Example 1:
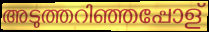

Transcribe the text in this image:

അടുത്തറിഞ്ഞപ്പോള്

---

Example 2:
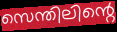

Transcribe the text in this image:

സെന്തിലിന്റെ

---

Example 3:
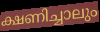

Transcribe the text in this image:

ക്ഷണിച്ചാലും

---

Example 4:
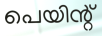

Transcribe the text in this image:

പെയിന്റ്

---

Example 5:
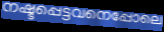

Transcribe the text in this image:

നഷ്ടപ്പെട്ടവനെപ്പോലെ